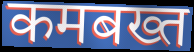
कमबख्त